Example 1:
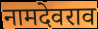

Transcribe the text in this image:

नामदेवराव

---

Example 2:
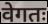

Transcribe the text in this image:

वेगतः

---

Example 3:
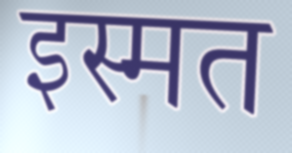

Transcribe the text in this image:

इस्मत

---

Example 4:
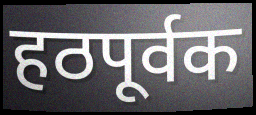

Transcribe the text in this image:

हठपूर्वक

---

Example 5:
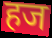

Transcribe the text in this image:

हज